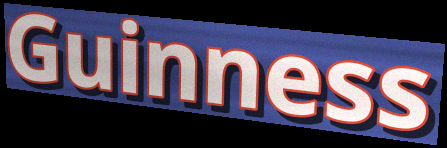
Guinness